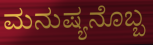
ಮನುಷ್ಯನೊಬ್ಬ